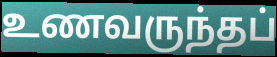
உணவருந்தப்